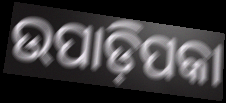
ଉପାଡ଼ିପକା